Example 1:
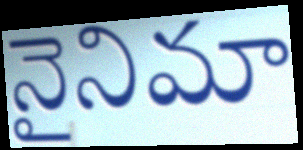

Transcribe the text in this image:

నైనిమా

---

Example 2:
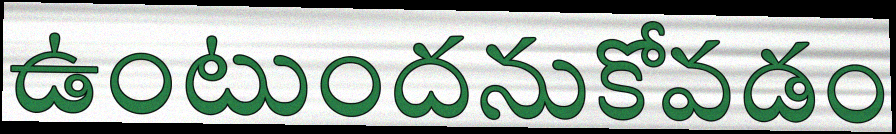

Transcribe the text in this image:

ఉంటుందనుకోవడం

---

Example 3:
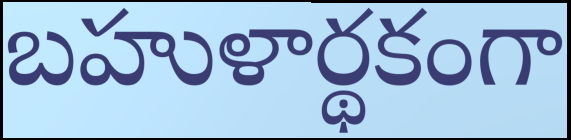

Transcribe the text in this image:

బహుళార్థకంగా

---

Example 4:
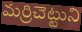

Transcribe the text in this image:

మర్రిచెట్టుని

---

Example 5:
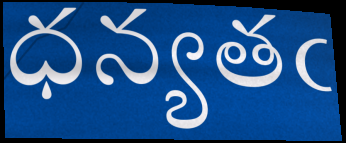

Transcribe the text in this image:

ధన్యతఁ